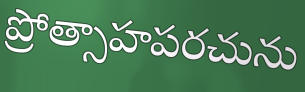
ప్రోత్సాహపరచును